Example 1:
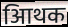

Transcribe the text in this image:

आिथक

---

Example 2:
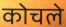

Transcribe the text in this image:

कोचले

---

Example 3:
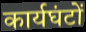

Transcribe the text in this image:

कार्यघंटों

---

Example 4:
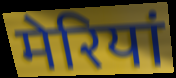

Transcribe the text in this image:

मेरियां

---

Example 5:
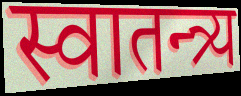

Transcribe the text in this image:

स्वातन्त्र्य